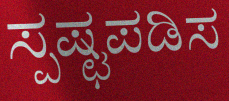
ಸ್ಪಷ್ಟಪಡಿಸ